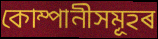
কোম্পানীসমূহৰ